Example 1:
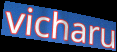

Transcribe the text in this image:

vicharu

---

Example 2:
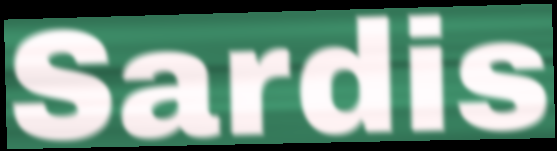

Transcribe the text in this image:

Sardis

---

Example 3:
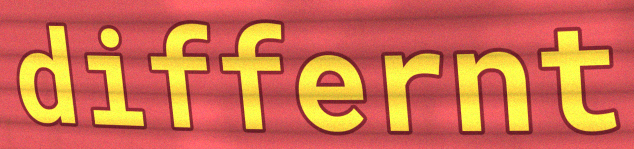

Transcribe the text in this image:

differnt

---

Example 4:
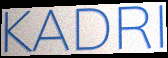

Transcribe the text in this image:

KADRI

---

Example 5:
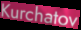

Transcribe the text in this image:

Kurchatov